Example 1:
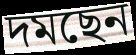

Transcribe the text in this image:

দমছেন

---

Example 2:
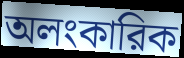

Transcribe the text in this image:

অলংকারিক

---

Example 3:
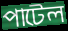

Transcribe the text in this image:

পাটেল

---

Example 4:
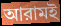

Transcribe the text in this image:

আরামই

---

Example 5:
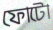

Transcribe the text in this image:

ফোটো